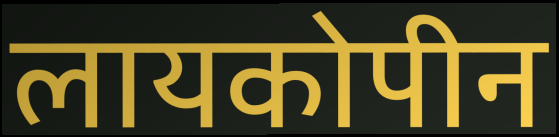
लायकोपीन